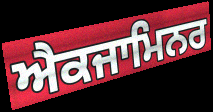
ਐਕਜਾਮਿਨਰ